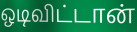
ஒடிவிட்டான்